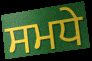
ਸਮਧੇ